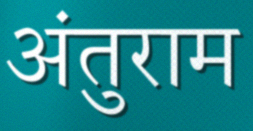
अंतुराम